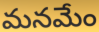
మనమేం